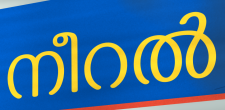
നീറൽ